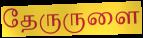
தேருருளை